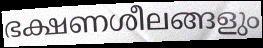
ഭക്ഷണശീലങ്ങളും